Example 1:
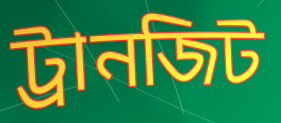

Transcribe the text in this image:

ট্রানজিট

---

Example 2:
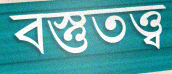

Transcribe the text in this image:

বস্তুতত্ত্ব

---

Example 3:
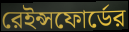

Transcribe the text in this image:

রেইন্সফোর্ডের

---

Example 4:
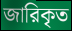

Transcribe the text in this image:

জারিকৃত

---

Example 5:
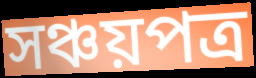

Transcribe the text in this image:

সঞ্চয়পত্র